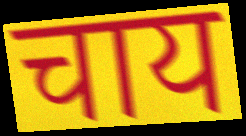
चाय